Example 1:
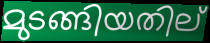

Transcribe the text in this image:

മുടങ്ങിയതില്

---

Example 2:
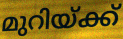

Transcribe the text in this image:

മുറിയ്ക്ക്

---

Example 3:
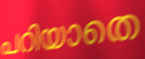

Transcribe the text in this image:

പറിയാതെ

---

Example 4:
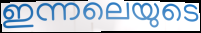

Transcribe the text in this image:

ഇന്നലെയുടെ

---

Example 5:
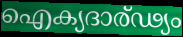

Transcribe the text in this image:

ഐക്യദാര്ഢ്യം